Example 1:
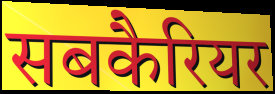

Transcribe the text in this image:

सबकैरियर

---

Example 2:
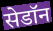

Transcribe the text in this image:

सेडॉन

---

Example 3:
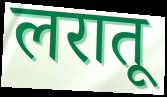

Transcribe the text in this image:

लरातू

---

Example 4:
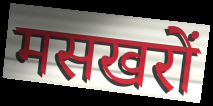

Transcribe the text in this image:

मसखरों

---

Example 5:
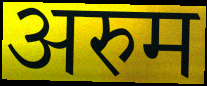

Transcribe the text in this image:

अरुम